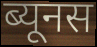
ब्यूनस